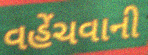
વહેંચવાની